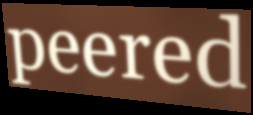
peered